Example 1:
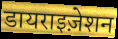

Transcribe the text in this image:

डायराइज़ेशन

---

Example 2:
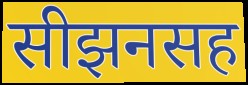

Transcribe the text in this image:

सीझनसह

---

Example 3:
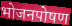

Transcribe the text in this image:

भोजनपोषण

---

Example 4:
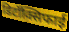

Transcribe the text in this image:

डिटॉक्सिफाई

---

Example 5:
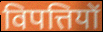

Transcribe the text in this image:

विपत्तियों